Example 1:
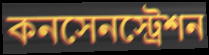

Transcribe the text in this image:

কনসেনস্ট্রেশন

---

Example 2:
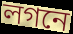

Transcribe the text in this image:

লগনে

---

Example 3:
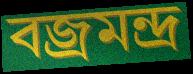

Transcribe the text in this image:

বজ্রমন্দ্র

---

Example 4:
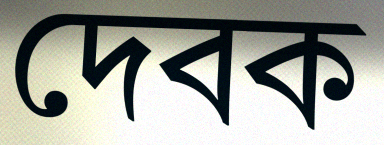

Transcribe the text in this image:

দেবক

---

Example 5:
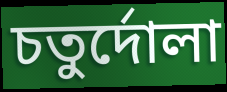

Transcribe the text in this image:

চতুর্দোলা